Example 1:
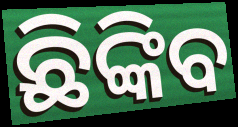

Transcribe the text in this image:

ଛିଙ୍କିବ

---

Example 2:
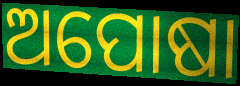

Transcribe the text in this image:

ଅପୋଷା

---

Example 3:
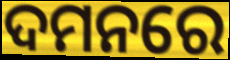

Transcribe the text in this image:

ଦମନରେ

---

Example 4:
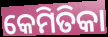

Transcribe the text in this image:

କେମିତିକା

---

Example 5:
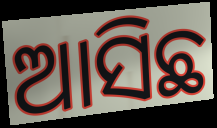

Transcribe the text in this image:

ଆସିଛ